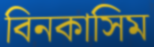
বিনকাসিম